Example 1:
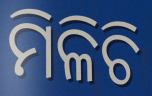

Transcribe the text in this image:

ମିଳିଚି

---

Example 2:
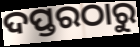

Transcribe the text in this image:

ଦପ୍ତରଠାରୁ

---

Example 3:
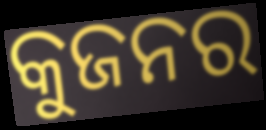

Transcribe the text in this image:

କୁଜନର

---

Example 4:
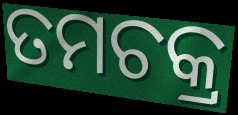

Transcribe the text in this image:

ତମଚକ୍ର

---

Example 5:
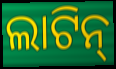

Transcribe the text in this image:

ଲାଟିନ୍